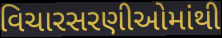
વિચારસરણીઓમાંથી